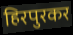
हिरपुरकर